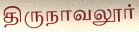
திருநாவலூர்